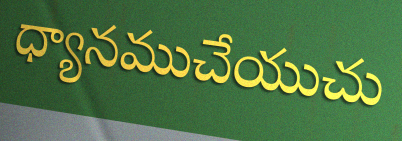
ధ్యానముచేయుచు